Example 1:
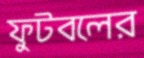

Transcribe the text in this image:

ফুটবলের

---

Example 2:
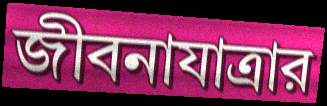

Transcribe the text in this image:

জীবনাযাত্রার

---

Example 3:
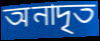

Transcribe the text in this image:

অনাদৃত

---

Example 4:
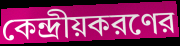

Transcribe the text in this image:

কেন্দ্রীয়করণের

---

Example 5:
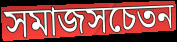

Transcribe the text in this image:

সমাজসচেতন